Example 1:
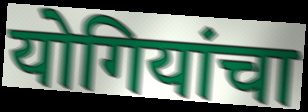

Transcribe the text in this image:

योगियांचा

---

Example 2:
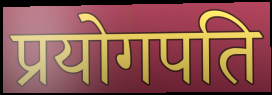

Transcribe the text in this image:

प्रयोगपति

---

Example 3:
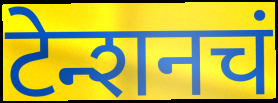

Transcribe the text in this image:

टेन्शनचं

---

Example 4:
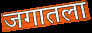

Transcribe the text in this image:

जगातला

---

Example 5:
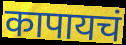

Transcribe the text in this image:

कापायचं